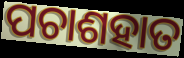
ପଚାଶହାତ